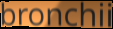
bronchii